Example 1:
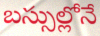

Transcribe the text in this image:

బస్సుల్లోనే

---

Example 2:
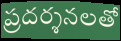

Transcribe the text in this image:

ప్రదర్శనలతో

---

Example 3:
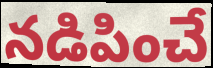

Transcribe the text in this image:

నడిపించే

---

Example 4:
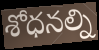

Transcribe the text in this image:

శోధనల్ని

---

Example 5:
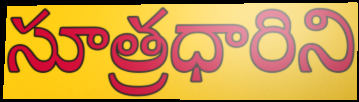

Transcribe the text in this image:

సూత్రధారిని